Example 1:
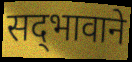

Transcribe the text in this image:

सद्‌भावाने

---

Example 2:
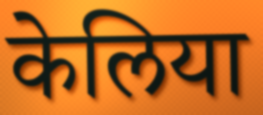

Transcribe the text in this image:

केलिया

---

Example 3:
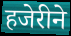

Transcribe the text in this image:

हजेरीने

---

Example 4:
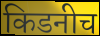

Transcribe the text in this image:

किडनीच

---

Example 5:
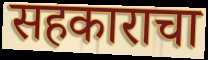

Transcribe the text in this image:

सहकाराचा